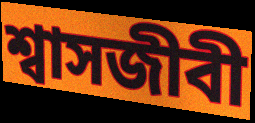
শ্বাসজীবী